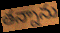
తన్నాను